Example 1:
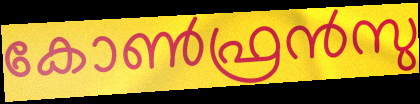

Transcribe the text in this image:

കോൺഫ്രൻസു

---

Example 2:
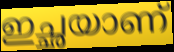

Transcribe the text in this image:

ഇച്ഛയാണ്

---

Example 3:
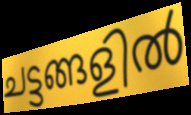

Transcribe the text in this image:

ചട്ടങ്ങളിൽ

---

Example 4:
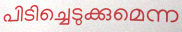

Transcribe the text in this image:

പിടിച്ചെടുക്കുമെന്ന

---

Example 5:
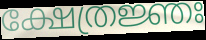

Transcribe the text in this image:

ക്ഷേത്രജ്ഞഃ